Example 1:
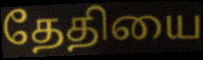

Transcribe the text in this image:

தேதியை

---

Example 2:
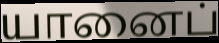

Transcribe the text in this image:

யானைப்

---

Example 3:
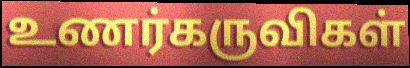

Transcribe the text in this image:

உணர்கருவிகள்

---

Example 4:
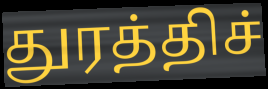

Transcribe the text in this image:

துரத்திச்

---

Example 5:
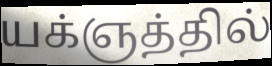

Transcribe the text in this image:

யக்ஞத்தில்